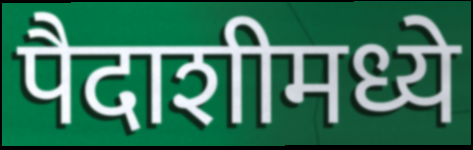
पैदाशीमध्ये